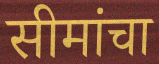
सीमांचा